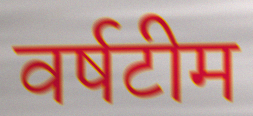
वर्षटीम